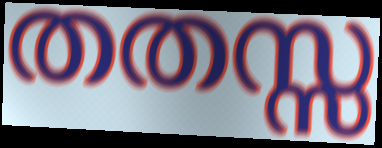
തതസ്സ